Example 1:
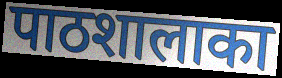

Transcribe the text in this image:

पाठशालाका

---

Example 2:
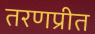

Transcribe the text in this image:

तरणप्रीत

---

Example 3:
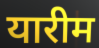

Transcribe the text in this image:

यारीम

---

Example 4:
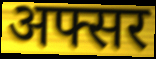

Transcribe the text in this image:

अफ्सर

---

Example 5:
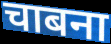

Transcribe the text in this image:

चाबना